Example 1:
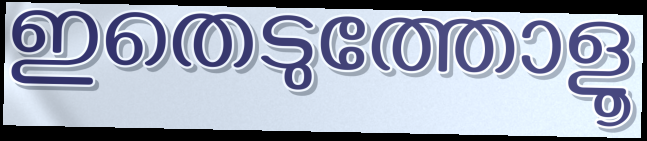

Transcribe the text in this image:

ഇതെടുത്തോളൂ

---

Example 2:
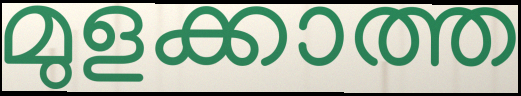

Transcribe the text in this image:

മുളക്കാത്ത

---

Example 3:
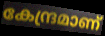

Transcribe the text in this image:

കേന്ദ്രമാണ്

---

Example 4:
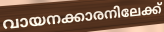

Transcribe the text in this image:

വായനക്കാരനിലേക്ക്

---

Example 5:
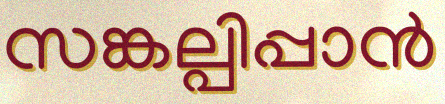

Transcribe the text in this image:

സങ്കല്പിപ്പാൻ